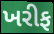
ખરીફ